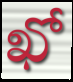
ఖో